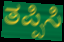
ತಪ್ಪಿಸಿ